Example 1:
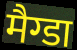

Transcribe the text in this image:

मैग्डा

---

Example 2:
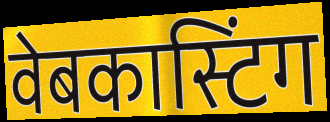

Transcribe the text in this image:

वेबकास्टिंग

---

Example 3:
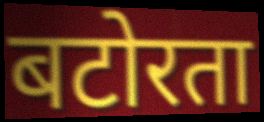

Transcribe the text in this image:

बटोरता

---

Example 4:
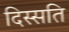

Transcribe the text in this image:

दिस्सति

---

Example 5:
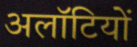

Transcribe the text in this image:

अलॉटियों